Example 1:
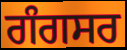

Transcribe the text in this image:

ਗੰਗਸਰ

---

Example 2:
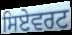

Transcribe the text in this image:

ਸਿਏਵਰਟ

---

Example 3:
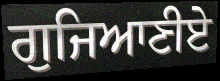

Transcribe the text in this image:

ਗੁਜਿਆਣੀਏ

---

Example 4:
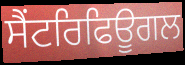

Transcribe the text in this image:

ਸੈਂਟਰਿਫਿਊਗਲ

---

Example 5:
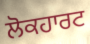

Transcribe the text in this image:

ਲੋਕਹਾਰਟ